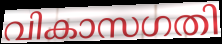
വികാസഗതി